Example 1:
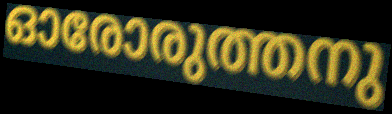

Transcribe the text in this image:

ഓരോരുത്തനു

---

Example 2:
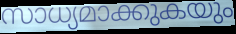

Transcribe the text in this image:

സാധ്യമാക്കുകയും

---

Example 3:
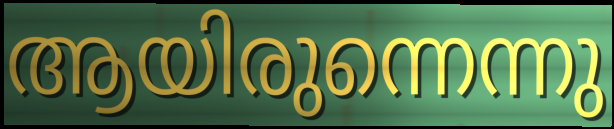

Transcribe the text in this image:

ആയിരുന്നെന്നു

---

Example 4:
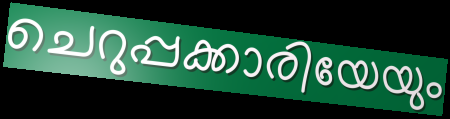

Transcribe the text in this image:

ചെറുപ്പക്കാരിയേയും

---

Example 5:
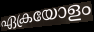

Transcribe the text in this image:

ഏക്രയോളം